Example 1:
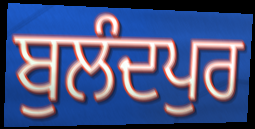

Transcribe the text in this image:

ਬੁਲੰਦਪੁਰ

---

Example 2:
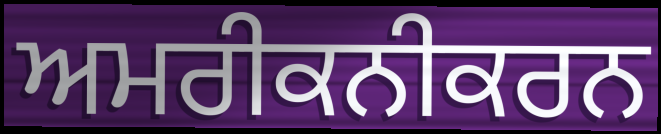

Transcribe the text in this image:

ਅਮਰੀਕਨੀਕਰਨ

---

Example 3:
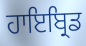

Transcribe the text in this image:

ਹਾਇਬ੍ਰਿਡ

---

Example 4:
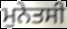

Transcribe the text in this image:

ਮੁਨੇਤਸੀ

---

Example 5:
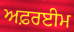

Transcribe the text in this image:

ਅਫ਼ਰਈਮ